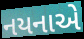
નયનાએ